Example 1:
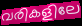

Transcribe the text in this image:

വരികളിലേ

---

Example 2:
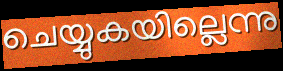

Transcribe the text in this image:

ചെയ്യുകയില്ലെന്നു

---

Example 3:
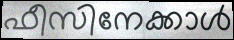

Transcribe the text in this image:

ഫീസിനേക്കാൾ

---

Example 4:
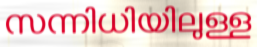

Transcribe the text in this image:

സന്നിധിയിലുള്ള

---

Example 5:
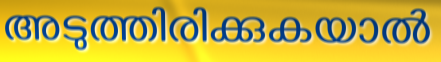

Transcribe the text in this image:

അടുത്തിരിക്കുകയാൽ